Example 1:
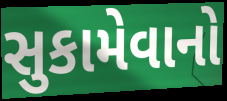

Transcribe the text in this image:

સુકામેવાનો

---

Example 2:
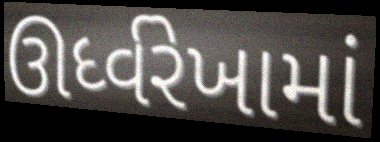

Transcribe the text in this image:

ઊર્ધ્વરેખામાં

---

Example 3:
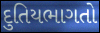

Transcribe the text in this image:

દુતિયભાગતો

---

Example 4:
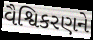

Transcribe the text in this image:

વૈશ્વિકરણને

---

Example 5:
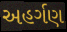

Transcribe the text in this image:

અહર્ગણ